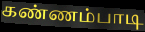
கண்ணம்பாடி